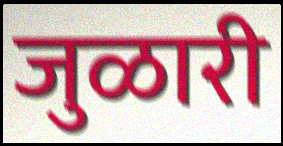
जुळारी